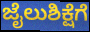
ಜೈಲುಶಿಕ್ಷೆಗೆ